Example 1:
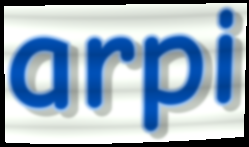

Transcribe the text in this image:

arpi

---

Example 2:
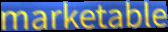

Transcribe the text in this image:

marketable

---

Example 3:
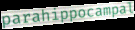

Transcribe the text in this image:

parahippocampal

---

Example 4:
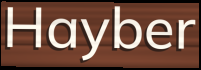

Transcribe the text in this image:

Hayber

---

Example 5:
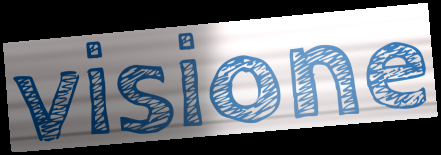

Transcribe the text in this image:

visione